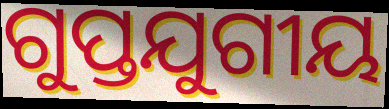
ଗୁପ୍ତଯୁଗୀୟ